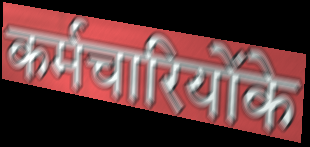
कर्मचारियोंके